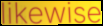
likewise